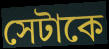
সেটাকে